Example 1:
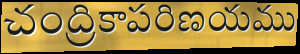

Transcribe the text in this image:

చంద్రికాపరిణయము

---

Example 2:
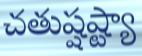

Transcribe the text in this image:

చతుష్షష్ట్యా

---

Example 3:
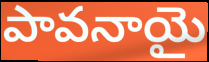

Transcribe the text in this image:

పావనాయై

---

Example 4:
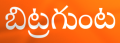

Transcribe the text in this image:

బిట్రగుంట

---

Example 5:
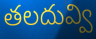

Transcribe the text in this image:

తలదువ్వి